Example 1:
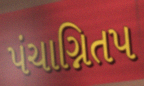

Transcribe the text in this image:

પંચાગ્નિતપ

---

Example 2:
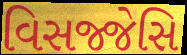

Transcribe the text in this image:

વિસજ્જેસિ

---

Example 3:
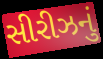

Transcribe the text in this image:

સીરીઝનું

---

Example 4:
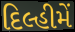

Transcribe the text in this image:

દિલ્હીમેં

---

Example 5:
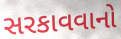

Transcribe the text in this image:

સરકાવવાનો